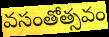
వసంతోత్సవం